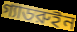
গ্যাডরুইন